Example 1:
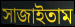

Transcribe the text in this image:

সাজাইতাম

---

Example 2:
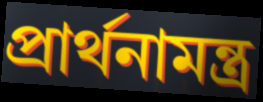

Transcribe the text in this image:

প্রার্থনামন্ত্র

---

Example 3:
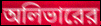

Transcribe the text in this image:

অলিভারের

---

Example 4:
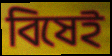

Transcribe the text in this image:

বিষেই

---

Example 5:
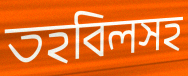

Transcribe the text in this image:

তহবিলসহ